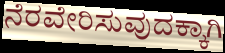
ನೆರವೇರಿಸುವುದಕ್ಕಾಗಿ